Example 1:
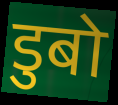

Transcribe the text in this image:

डुबो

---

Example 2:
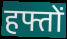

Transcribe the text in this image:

हफ्तों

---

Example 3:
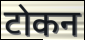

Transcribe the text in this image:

टोकन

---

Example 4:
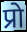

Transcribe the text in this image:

प्रो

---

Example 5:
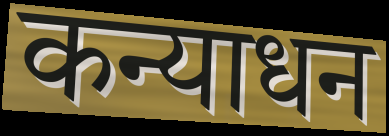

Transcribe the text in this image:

कन्याधन